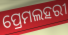
ପ୍ରେମଲହରୀ